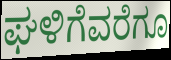
ಘಳಿಗೆವರೆಗೂ